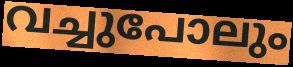
വച്ചുപോലും